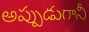
అప్పుడుగానీ